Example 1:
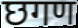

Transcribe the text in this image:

छगण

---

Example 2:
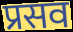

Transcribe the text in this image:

प्रसव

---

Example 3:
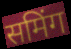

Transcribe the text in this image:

समिंग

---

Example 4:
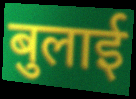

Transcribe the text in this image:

बुलाई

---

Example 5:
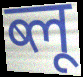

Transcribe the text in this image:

ब्लू